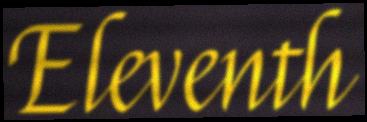
Eleventh